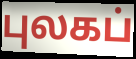
புலகப்